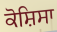
ਕੋਸ਼ਿਸਾ